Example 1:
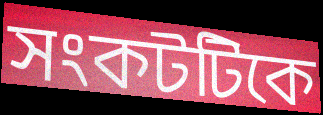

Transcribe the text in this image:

সংকটটিকে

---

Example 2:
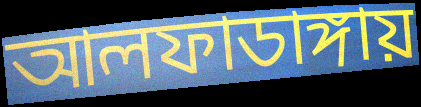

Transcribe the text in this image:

আলফাডাঙ্গায়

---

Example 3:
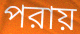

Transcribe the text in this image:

পরায়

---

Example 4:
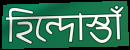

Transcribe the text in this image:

হিন্দোস্তাঁ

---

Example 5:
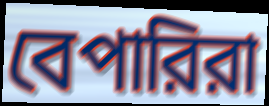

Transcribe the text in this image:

বেপারিরা